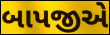
બાપજીએ